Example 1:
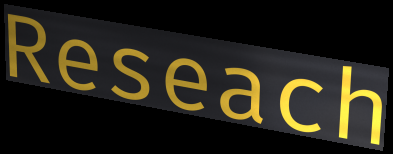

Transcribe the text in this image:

Reseach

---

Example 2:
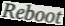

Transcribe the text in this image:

Reboot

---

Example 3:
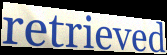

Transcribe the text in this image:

retrieved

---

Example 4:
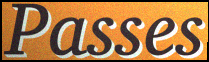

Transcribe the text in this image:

Passes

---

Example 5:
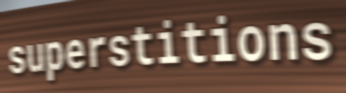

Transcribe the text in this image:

superstitions